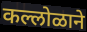
कल्लोळाने